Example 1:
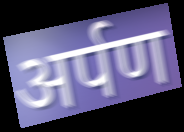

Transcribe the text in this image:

अर्पण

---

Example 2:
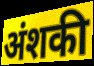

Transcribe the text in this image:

अंशकी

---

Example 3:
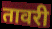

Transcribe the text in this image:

तावरी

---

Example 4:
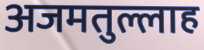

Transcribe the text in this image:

अजमतुल्लाह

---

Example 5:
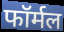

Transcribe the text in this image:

फॉर्मल